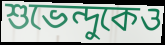
শুভেন্দুকেও